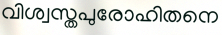
വിശ്വസ്തപുരോഹിതനെ